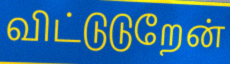
விட்டுடுறேன்